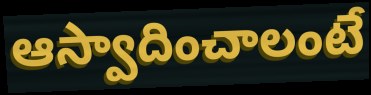
ఆస్వాదించాలంటే